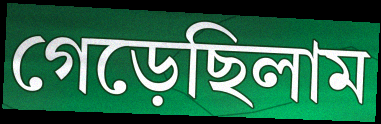
গেড়েছিলাম